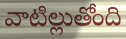
వాటిల్లుతోంది